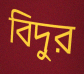
বিদুর